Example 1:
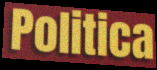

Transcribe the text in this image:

Politica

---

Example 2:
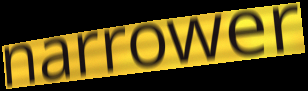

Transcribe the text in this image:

narrower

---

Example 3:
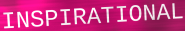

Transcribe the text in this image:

INSPIRATIONAL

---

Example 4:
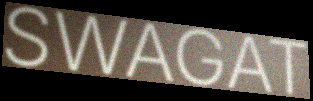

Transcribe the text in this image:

SWAGAT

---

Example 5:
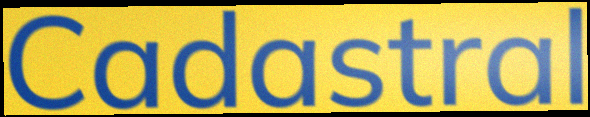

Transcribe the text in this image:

Cadastral